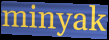
minyak